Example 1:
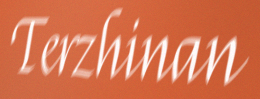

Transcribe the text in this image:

Terzhinan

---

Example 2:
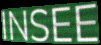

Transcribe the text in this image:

INSEE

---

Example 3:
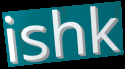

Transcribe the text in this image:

ishk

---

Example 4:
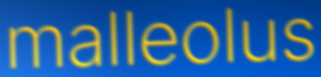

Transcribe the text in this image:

malleolus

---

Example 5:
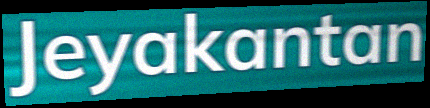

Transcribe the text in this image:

Jeyakantan